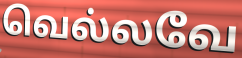
வெல்லவே